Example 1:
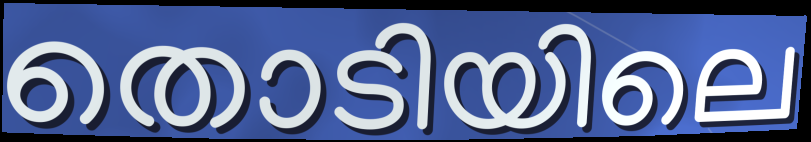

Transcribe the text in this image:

തൊടിയിലെ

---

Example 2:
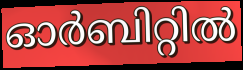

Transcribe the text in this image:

ഓർബിറ്റിൽ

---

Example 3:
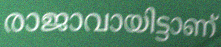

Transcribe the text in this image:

രാജാവായിട്ടാണ്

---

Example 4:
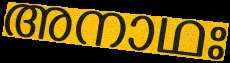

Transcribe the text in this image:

അനാഥഃ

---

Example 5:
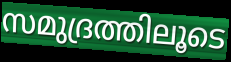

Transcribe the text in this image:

സമുദ്രത്തിലൂടെ